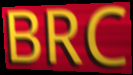
BRC